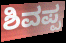
ಶಿವಪ್ಪ